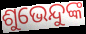
ଶୁଭେନ୍ଦୁଙ୍କ